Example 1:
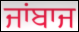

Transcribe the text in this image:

ਜਾਂਬਾਜ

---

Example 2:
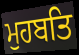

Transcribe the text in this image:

ਮੁਹਬਤਿ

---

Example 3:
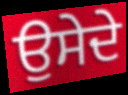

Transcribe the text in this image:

ਉਸੇਦੇ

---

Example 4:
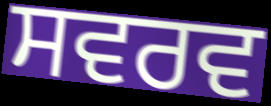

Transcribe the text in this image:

ਸਵਰਵ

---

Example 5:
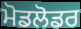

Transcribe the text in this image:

ਮੋਡਲੋਡਰ